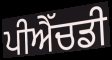
ਪੀਐੱਚਡੀ